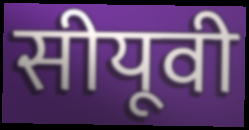
सीयूवी